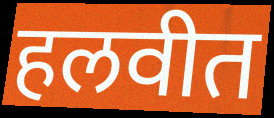
हलवीत